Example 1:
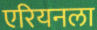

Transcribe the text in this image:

एरियनला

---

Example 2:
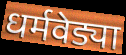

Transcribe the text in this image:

धर्मवेड्या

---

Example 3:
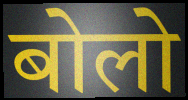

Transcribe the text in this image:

बोलो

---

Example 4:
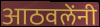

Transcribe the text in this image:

आठवलेंनी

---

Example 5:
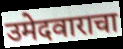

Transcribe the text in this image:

उमेदवाराचा